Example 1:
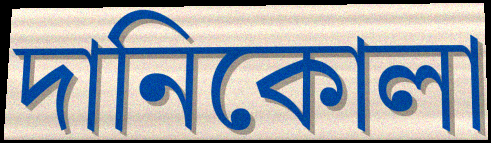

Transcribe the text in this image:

দানিকোলা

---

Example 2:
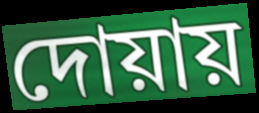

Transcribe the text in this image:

দোয়ায়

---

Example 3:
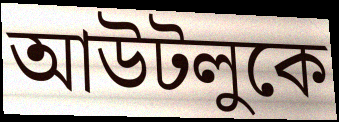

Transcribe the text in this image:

আউটলুকে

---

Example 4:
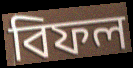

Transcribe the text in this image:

বিফল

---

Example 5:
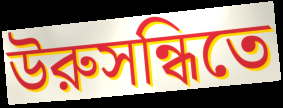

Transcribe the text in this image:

উরুসন্ধিতে